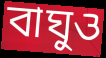
বাঘুও